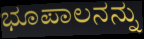
ಭೂಪಾಲನನ್ನು